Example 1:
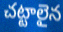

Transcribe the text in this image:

చట్టాలైన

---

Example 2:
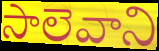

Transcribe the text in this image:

సాలెవాని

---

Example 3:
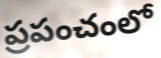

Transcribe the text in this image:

ప్రపంచంలో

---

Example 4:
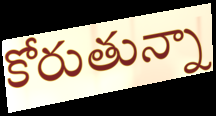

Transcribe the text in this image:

కోరుతున్నా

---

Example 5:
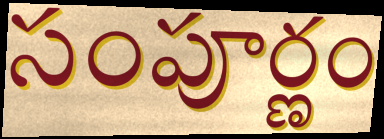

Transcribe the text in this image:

సంపూర్ణం